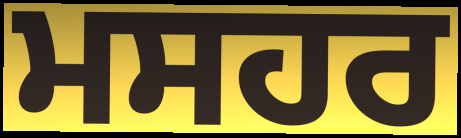
ਮਸਹਰ